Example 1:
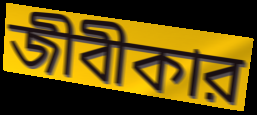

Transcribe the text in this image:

জীবীকার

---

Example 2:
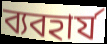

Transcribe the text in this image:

ব্যবহার্য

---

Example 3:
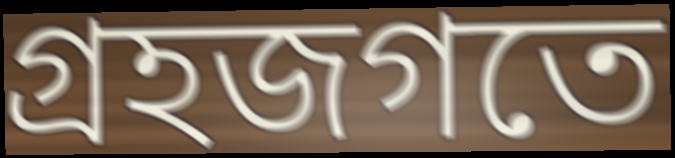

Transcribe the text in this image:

গ্রহজগতে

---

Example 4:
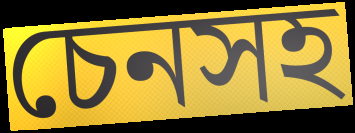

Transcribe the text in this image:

চেনসহ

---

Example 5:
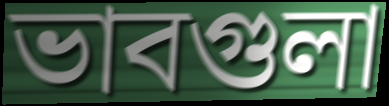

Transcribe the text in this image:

ভাবগুলা